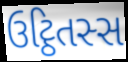
ઉટ્ઠિતસ્સ